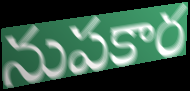
నుపకార